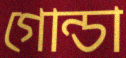
গোন্ডা